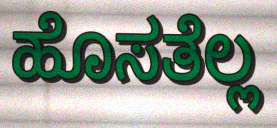
ಹೊಸತೆಲ್ಲ